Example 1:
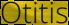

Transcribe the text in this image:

Otitis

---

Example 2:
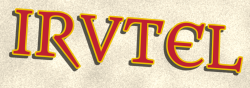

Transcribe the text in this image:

IRVTEL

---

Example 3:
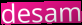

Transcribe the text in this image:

desam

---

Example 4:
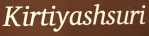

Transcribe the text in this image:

Kirtiyashsuri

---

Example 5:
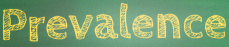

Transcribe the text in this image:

Prevalence